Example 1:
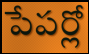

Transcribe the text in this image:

పేపర్లో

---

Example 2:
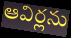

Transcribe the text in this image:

ఆవిర్లను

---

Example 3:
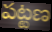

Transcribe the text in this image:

పట్టణ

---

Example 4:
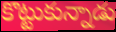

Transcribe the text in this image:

కొట్టుకున్నాడు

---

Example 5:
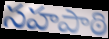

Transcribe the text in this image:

సహపాఠి